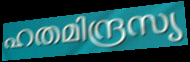
ഹതമിന്ദ്രസ്യ